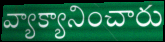
వ్యాక్యానించారు